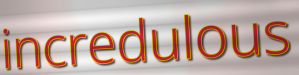
incredulous